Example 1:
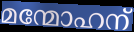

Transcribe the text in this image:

മന്മോഹന്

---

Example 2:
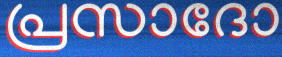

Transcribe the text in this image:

പ്രസാദോ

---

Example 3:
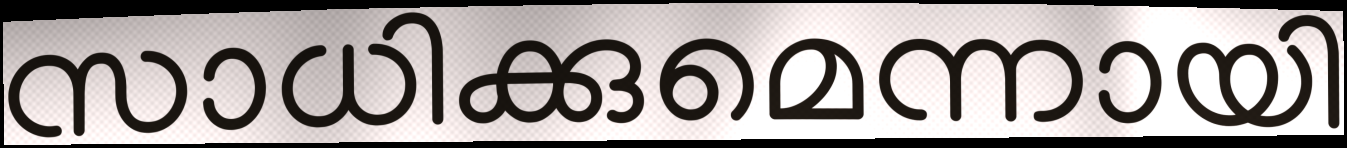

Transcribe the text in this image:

സാധിക്കുമെന്നായി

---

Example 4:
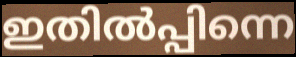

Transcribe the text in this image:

ഇതിൽപ്പിന്നെ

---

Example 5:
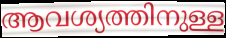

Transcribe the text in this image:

ആവശ്യത്തിനുള്ള